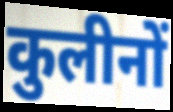
कुलीनों